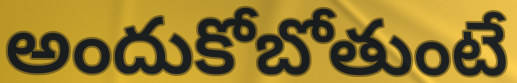
అందుకోబోతుంటే